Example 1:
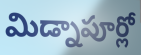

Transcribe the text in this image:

మిడ్నాపూర్లో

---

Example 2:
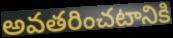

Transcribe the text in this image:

అవతరించటానికి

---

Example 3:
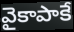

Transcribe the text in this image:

వైకాపాకే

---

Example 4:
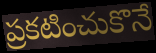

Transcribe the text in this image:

ప్రకటించుకొనే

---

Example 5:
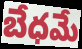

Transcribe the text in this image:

బేధమే